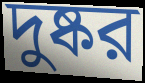
দুষ্কর